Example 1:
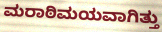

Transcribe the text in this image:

ಮರಾಠಿಮಯವಾಗಿತ್ತು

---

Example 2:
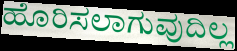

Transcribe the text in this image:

ಹೊರಿಸಲಾಗುವುದಿಲ್ಲ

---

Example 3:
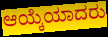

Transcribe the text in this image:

ಆಯ್ಕೆಯಾದರು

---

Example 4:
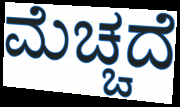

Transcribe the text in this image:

ಮೆಚ್ಚದೆ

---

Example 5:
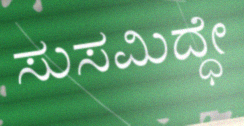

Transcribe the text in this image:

ಸುಸಮಿದ್ಧೇ